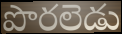
పొరలెడు